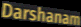
Darshanam